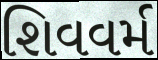
શિવવર્મ